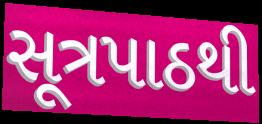
સૂત્રપાઠથી